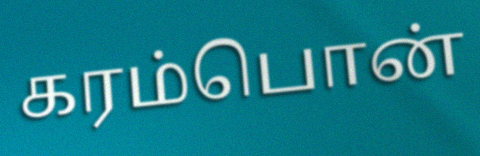
கரம்பொன்